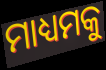
ମାଧ୍ୟମକୁ